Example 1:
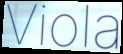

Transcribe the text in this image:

Viola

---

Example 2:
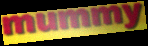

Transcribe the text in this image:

mummy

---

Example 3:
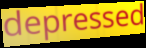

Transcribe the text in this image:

depressed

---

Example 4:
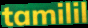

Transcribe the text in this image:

tamilil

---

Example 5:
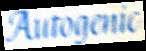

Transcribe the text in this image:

Autogenic